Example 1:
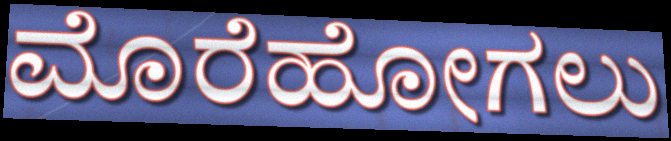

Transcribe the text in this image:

ಮೊರೆಹೋಗಲು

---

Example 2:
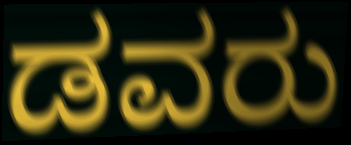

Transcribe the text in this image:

ಡವರು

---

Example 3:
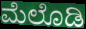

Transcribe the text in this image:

ಮೆಲೊಡಿ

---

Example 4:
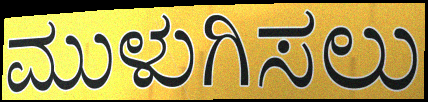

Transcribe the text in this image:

ಮುಳುಗಿಸಲು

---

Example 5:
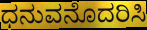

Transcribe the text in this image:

ಧನುವನೊದರಿಸಿ